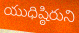
యుధిష్ఠిరుని